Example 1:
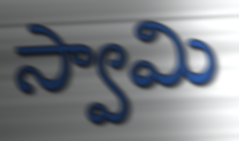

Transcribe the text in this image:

స్వామి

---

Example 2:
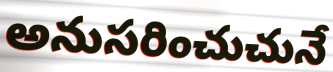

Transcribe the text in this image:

అనుసరించుచునే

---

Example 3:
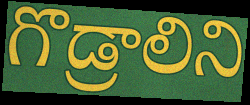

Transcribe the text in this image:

గొడ్రాలిని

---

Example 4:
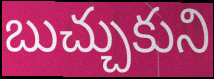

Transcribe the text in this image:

బుచ్చుకుని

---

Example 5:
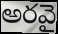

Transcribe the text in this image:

అరవై